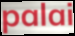
palai